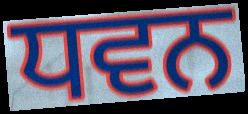
ਧਵਨ